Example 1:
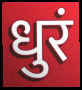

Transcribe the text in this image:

धुरं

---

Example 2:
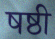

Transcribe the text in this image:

षष्ठी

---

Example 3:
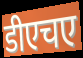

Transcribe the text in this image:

डीएचए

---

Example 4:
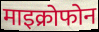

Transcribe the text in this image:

माइक्रोफोन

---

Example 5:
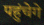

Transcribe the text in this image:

पहुंचेगे